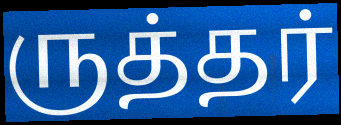
ருத்தர்